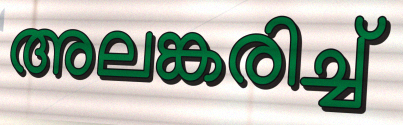
അലങ്കരിച്ച്